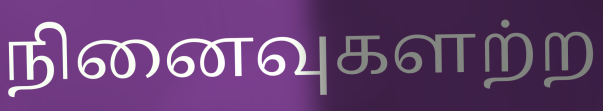
நினைவுகளற்ற